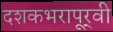
दशकभरापूर्वी